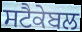
ਸਟੈਕੇਬਲ